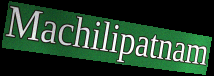
Machilipatnam